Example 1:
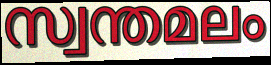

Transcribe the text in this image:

സ്വന്തമലം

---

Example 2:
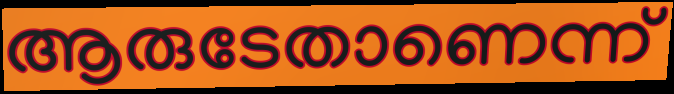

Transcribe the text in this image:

ആരുടേതാണെന്ന്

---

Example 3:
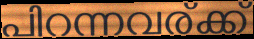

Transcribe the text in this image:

പിറന്നവര്ക്ക്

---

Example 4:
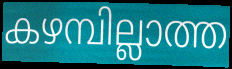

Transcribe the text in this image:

കഴമ്പില്ലാത്ത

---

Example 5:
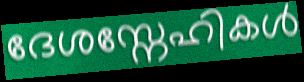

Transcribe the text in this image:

ദേശസ്നേഹികൾ